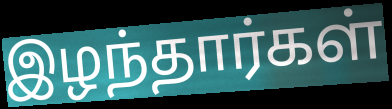
இழந்தார்கள்